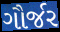
ગૌર્જર